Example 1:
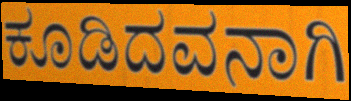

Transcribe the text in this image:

ಕೂಡಿದವನಾಗಿ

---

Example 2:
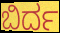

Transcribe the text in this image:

ಬಿರ್ದ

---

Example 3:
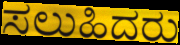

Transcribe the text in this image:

ಸಲುಹಿದರು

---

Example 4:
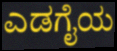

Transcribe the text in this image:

ಎಡಗೈಯ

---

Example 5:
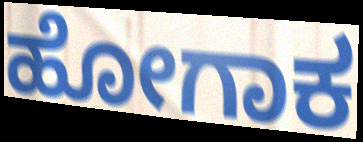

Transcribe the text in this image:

ಹೋಗಾಕ